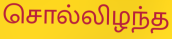
சொல்லிழந்த